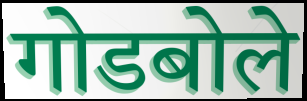
गोडबोले